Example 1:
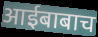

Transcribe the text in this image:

आईबाबाच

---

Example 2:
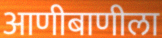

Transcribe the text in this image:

आणीबाणीला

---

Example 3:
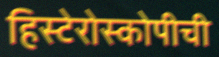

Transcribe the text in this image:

हिस्टेरोस्कोपीची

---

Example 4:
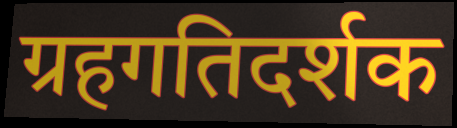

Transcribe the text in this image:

ग्रहगतिदर्शक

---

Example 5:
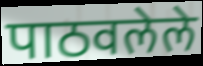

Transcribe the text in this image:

पाठवलेले